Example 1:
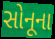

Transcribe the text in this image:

સોનૂના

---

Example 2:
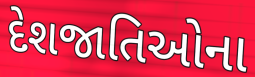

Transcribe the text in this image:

દેશજાતિઓના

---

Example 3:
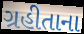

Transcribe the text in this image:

ગ્રહીતાના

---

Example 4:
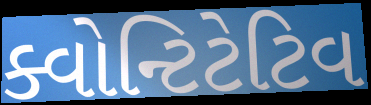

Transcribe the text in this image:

ક્વોન્ટિટેટિવ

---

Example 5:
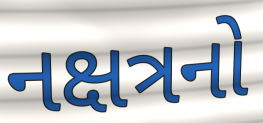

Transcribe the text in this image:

નક્ષત્રનો